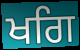
ਖਗਿ